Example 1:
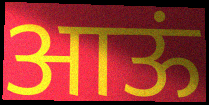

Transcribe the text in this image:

आऊं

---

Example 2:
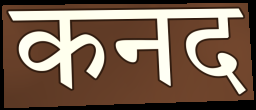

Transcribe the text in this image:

कनद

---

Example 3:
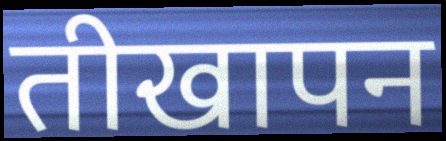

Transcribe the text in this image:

तीखापन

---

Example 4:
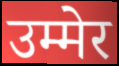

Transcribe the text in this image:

उम्मेर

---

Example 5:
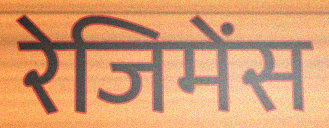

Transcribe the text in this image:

रेजिमेंस